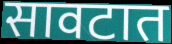
सावटात